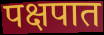
पक्षपात